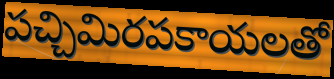
పచ్చిమిరపకాయలతో